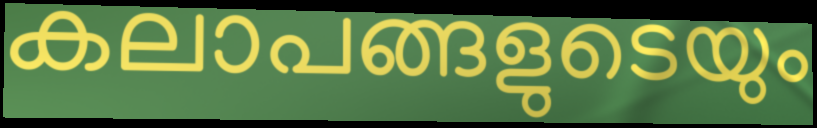
കലാപങ്ങളുടെയും